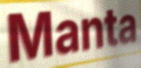
Manta